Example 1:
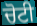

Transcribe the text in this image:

ਚੋਟੀ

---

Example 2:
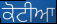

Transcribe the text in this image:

ਕੋਟੀਆ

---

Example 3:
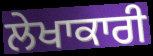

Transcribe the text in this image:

ਲੇਖਾਕਾਰੀ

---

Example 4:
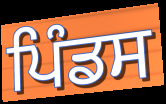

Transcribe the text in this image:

ਪਿੰਡਸ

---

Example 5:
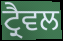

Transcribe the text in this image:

ਟ੍ਰੈਵਲ